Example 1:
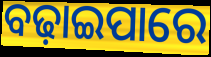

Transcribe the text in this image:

ବଢ଼ାଇପାରେ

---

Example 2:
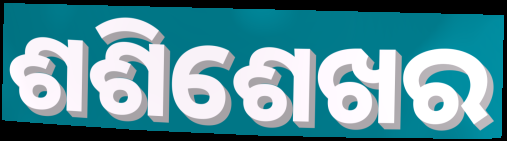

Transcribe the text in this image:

ଶଶିଶେଖର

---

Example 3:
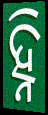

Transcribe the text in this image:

ହ୍ନି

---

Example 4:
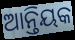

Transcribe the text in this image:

ଆନ୍ତିୟକ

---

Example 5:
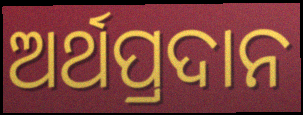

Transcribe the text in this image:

ଅର୍ଥପ୍ରଦାନ